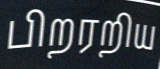
பிறரறிய